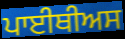
ਪਾਈਥੀਅਸ